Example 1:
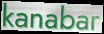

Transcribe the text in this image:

kanabar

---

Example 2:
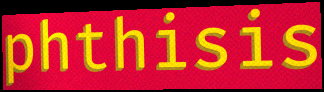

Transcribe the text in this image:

phthisis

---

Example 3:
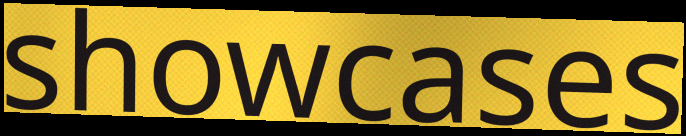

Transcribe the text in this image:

showcases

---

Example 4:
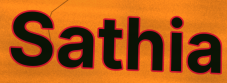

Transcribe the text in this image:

Sathia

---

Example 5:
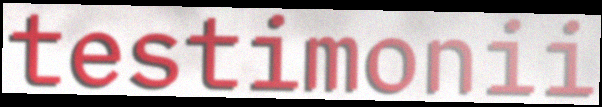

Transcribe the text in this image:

testimonii